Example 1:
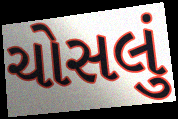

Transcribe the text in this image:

ચોસલું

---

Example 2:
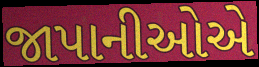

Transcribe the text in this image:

જાપાનીઓએ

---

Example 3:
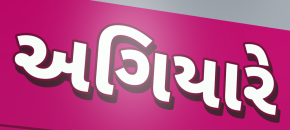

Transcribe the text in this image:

અગિયારે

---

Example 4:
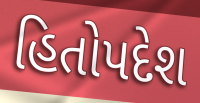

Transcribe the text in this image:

હિતોપદેશ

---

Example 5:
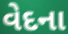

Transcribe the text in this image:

વેદના